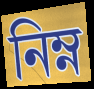
নিম্ন